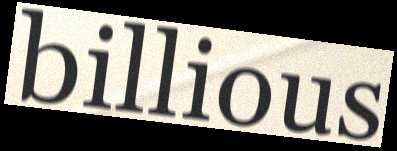
billious